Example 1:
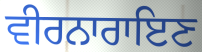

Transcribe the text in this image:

ਵੀਰਨਾਰਾਇਣ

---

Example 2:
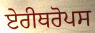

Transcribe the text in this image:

ਏਰੀਥਰੋਪਸ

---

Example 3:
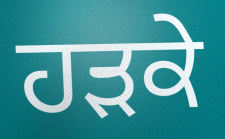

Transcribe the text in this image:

ਹੜਕੇ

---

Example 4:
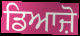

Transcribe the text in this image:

ਡਿਆਜ਼ੋ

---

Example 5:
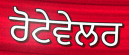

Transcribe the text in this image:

ਰੋਟੇਵੇਲਰ